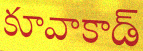
కూవాకాడ్